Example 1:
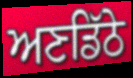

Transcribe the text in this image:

ਅਣਡਿੱਠੇ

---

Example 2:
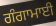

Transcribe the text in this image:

ਗੰਗਾਮਾਈ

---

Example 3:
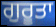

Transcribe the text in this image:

ਗੁਰੂਤਾ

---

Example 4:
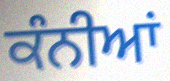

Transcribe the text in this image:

ਕੰਨੀਆਂ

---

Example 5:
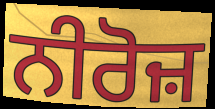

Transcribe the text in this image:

ਨੀਰੋਜ਼